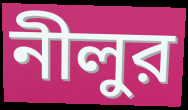
নীলুর